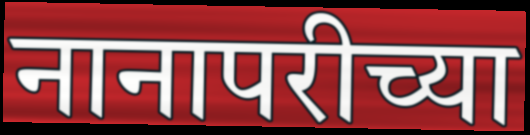
नानापरीच्या